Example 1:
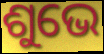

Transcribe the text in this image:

ଶୁଭେ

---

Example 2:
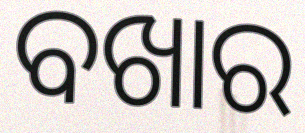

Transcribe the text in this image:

ବଖାର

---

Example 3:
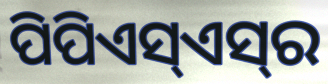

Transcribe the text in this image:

ପିପିଏସ୍ଏସ୍‌ର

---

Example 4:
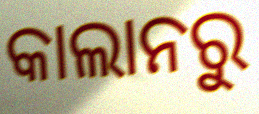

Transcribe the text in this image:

କାଲାନରୁ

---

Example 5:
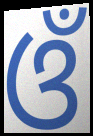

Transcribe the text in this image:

ଓଁ